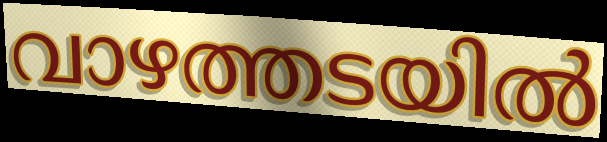
വാഴത്തടയിൽ